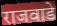
राजवाडे